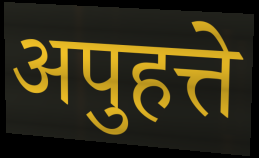
अपुहत्ते